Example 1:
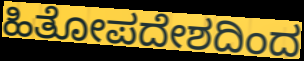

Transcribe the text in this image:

ಹಿತೋಪದೇಶದಿಂದ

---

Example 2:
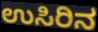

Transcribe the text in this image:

ಉಸಿರಿನ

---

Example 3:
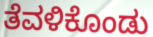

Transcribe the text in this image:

ತೆವಳಿಕೊಂಡು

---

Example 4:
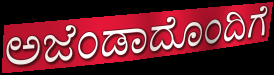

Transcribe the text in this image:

ಅಜೆಂಡಾದೊಂದಿಗೆ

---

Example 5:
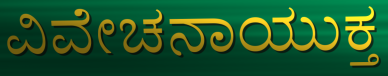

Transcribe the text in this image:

ವಿವೇಚನಾಯುಕ್ತ